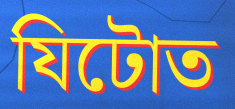
যিটোত